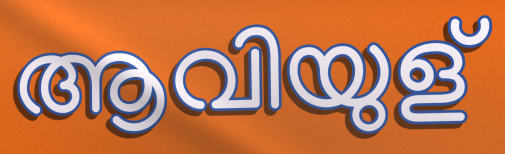
ആവിയുള്